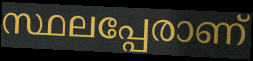
സ്ഥലപ്പേരാണ്